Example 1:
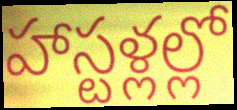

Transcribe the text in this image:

హాస్టళ్లల్లో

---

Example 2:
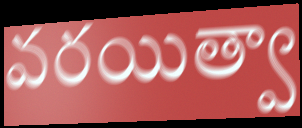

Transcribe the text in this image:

వరయిత్వా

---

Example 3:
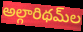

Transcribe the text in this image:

అల్గారిథమ్‌ల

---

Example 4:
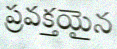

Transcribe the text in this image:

ప్రవక్తయైన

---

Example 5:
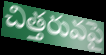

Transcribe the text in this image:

చిత్తరువపై